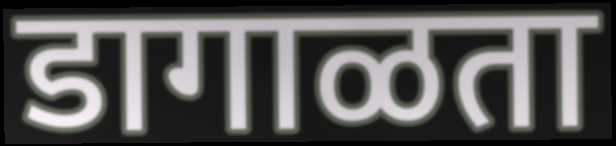
डागाळता